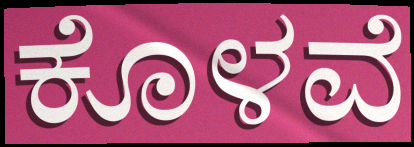
ಕೊಳವೆ